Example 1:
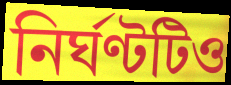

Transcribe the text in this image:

নির্ঘণ্টটিও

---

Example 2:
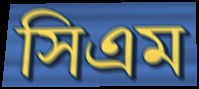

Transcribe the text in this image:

সিএম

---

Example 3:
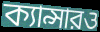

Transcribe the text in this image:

ক্যান্সারও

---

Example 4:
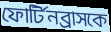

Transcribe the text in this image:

ফোর্টিনব্রাসকে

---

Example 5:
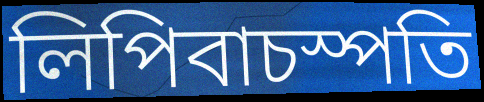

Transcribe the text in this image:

লিপিবাচস্পতি